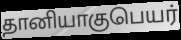
தானியாகுபெயர்